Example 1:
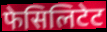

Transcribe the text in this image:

फेसिलिटेट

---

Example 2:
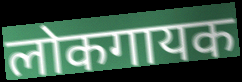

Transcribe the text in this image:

लोकगायक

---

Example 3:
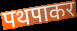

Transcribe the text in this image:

पथपाकर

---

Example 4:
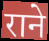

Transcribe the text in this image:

राने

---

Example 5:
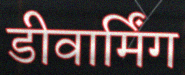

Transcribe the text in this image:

डीवार्मिंग